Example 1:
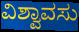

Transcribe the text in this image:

ವಿಶ್ವಾವಸು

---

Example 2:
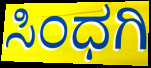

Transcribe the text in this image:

ಸಿಂಧಗಿ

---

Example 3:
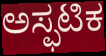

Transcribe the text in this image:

ಅಸ್ಫಟಿಕ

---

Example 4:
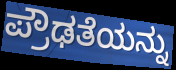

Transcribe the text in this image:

ಪ್ರೌಢತೆಯನ್ನು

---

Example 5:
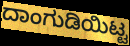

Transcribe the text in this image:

ದಾಂಗುಡಿಯಿಟ್ಟ